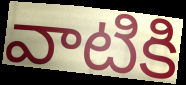
వాటికి